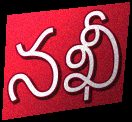
నఖీ